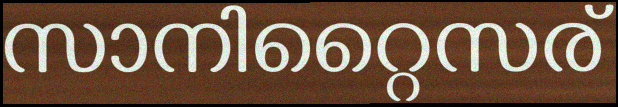
സാനിറ്റൈസര്